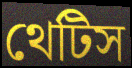
থেটিস